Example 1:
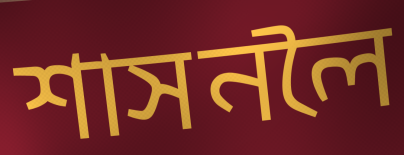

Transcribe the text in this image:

শাসনলৈ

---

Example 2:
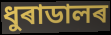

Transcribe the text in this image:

ধুৰাডালৰ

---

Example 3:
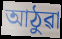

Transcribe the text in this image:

আঠুৱা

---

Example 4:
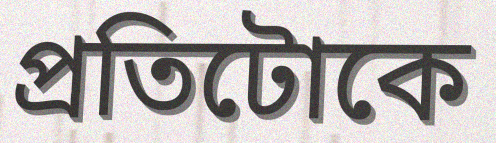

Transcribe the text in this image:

প্ৰতিটোকে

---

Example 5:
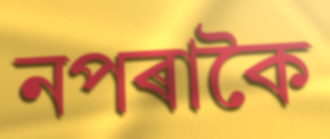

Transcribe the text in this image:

নপৰাকৈ